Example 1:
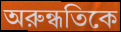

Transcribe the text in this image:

অরুন্ধতিকে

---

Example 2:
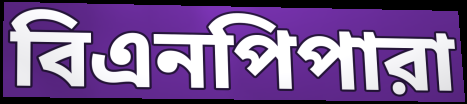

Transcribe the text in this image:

বিএনপিপারা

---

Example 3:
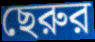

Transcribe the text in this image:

ছেরুর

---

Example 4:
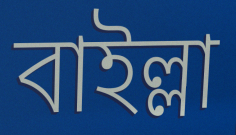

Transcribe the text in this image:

বাইল্লা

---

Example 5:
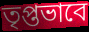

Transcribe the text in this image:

তৃপ্তভাবে